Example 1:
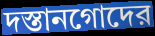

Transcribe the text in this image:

দস্তানগোদের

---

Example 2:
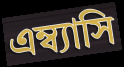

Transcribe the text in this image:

এম্ব্যাসি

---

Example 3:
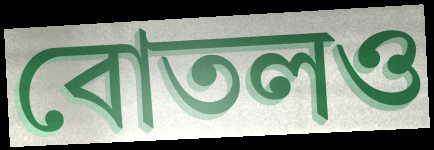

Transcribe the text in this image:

বোতলও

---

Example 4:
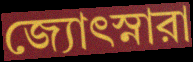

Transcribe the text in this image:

জ্যোৎস্নারা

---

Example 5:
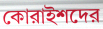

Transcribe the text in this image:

কোরাইশদের